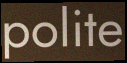
polite